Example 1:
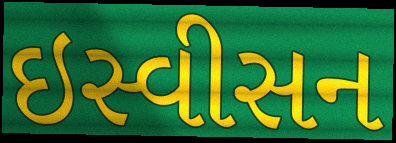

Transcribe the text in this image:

ઇસ્વીસન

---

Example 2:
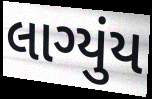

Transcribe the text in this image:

લાગ્યુંય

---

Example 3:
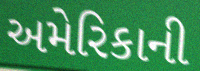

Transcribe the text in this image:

અમેરિકાની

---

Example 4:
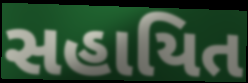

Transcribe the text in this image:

સહાયિત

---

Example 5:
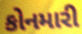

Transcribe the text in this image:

કોનમારી